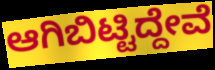
ಆಗಿಬಿಟ್ಟಿದ್ದೇವೆ